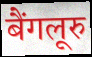
बैंगलूरु